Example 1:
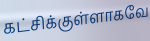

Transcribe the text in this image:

கட்சிக்குள்ளாகவே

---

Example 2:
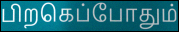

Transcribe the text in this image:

பிறகெப்போதும்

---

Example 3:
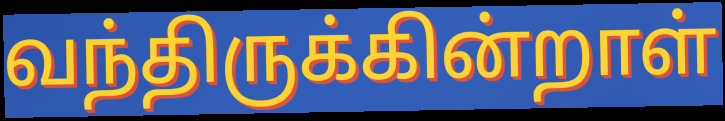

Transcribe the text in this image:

வந்திருக்கின்றாள்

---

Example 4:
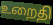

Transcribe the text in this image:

உறைதி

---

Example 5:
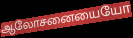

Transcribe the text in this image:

ஆலோசனையையோ